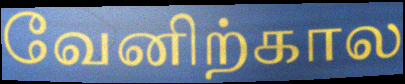
வேனிற்கால